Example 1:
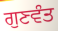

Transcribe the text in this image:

ਗੁਣਵੰਤ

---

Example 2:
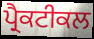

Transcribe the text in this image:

ਪ੍ਰੈਕਟੀਕਲ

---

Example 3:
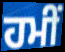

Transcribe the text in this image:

ਹਮੀਂ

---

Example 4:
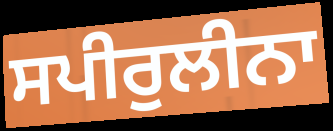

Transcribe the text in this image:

ਸਪੀਰੁਲੀਨਾ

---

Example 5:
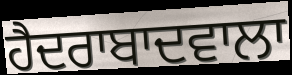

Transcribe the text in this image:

ਹੈਦਰਾਬਾਦਵਾਲਾ